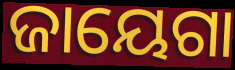
ଜାୟେଗା